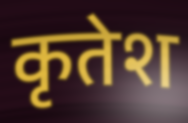
कृतेश